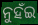
ନୁହଁଇ